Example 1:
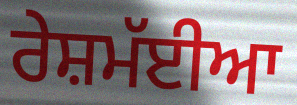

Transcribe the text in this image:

ਰੇਸ਼ਮੱਈਆ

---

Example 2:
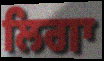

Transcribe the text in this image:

ਲਿਗਾ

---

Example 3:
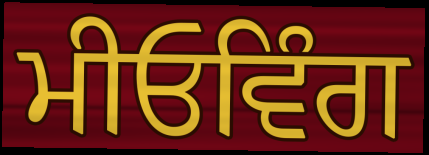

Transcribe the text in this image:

ਮੀਓਵਿੰਗ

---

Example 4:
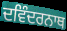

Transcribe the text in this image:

ਦਵਿੰਦਰਨਾਥ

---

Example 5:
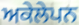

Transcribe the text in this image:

ਅਕੇਲੇਪਨ